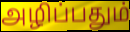
அழிப்பதும்